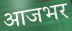
आजभर